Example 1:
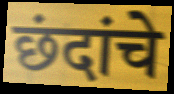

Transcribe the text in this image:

छंदांचे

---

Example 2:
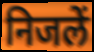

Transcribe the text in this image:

निजलें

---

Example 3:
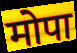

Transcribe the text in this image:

मोपा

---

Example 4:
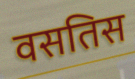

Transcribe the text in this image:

वसतिस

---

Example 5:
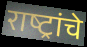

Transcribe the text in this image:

राष्ट्रांचे